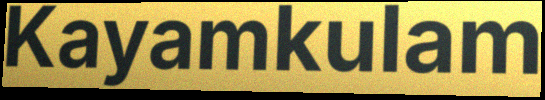
Kayamkulam